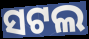
ସଟଲ